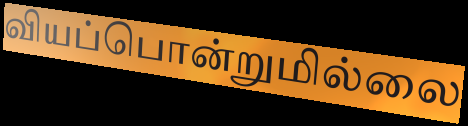
வியப்பொன்றுமில்லை